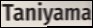
Taniyama